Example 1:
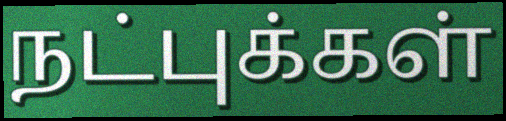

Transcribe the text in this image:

நட்புக்கள்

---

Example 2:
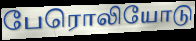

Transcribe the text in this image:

பேரொலியோடு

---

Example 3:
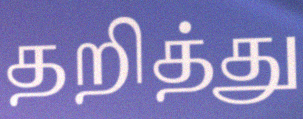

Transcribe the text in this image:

தறித்து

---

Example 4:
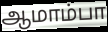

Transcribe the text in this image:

ஆமாம்பா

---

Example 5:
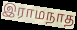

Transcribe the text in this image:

இராமநாத